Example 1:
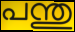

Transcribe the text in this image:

പന്തു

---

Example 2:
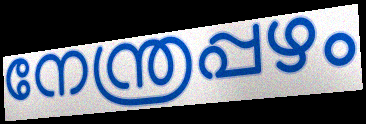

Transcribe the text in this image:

നേന്ത്രപ്പഴം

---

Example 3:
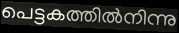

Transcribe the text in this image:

പെട്ടകത്തിൽനിന്നു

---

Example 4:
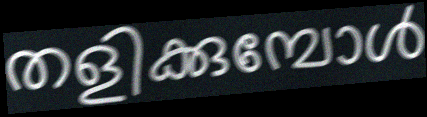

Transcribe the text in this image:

തളിക്കുമ്പോൾ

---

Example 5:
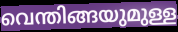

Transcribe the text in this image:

വെന്തിങ്ങയുമുള്ള